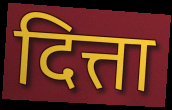
दित्ता